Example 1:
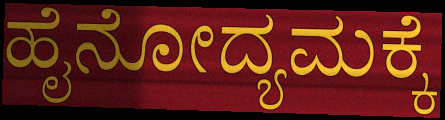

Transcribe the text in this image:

ಹೈನೋದ್ಯಮಕ್ಕೆ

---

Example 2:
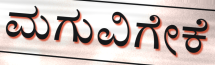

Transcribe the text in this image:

ಮಗುವಿಗೇಕೆ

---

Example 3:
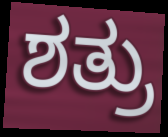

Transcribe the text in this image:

ಶತ್ರು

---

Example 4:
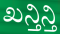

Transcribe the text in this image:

ಖನ್ತಿನ್ತಿ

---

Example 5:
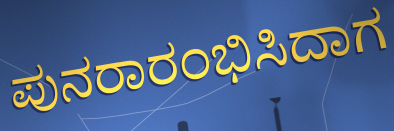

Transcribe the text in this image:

ಪುನರಾರಂಭಿಸಿದಾಗ